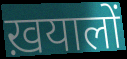
ख़यालों